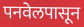
पनवेलपासून